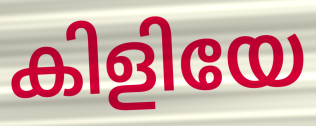
കിളിയേ